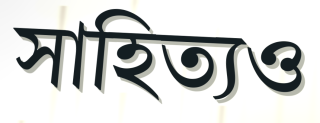
সাহিত্যও